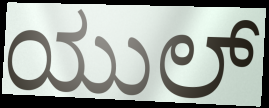
ಯುಲ್